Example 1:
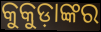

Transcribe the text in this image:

କୁକୁଡ଼ାଙ୍କର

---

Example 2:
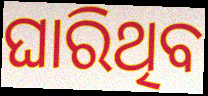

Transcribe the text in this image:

ଘାରିଥିବ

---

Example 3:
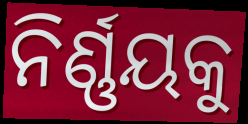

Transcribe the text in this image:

ନିର୍ଣ୍ଣୟକୁ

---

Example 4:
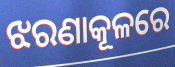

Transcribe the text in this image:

ଝରଣାକୂଳରେ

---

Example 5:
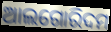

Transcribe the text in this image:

ଆଲଗୋରିଦମ